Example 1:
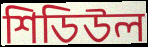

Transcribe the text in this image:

শিডিউল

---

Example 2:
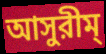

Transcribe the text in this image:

আসুরীম্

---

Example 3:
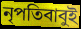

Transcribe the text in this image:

নৃপতিবাবুই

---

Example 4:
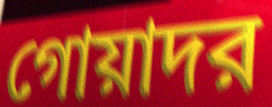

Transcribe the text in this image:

গোয়াদর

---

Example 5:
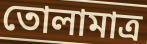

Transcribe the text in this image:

তোলামাত্র